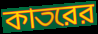
কাতরের